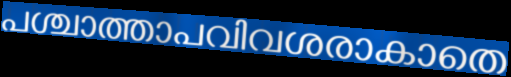
പശ്ചാത്താപവിവശരാകാതെ